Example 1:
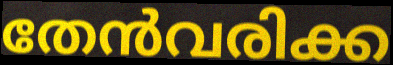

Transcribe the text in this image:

തേൻവരിക്ക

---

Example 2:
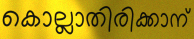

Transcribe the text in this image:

കൊല്ലാതിരിക്കാന്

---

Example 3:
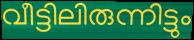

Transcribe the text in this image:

വീട്ടിലിരുന്നിട്ടും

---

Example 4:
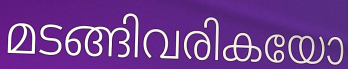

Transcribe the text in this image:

മടങ്ങിവരികയോ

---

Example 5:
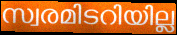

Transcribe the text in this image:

സ്വരമിടറിയില്ല